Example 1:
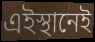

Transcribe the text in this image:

এইস্থানেই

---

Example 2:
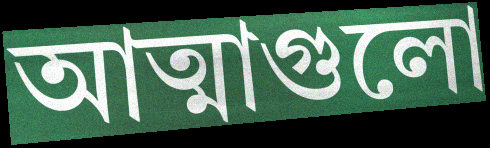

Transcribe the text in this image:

আত্মাগুলো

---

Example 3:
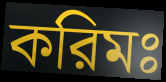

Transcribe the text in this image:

করিমঃ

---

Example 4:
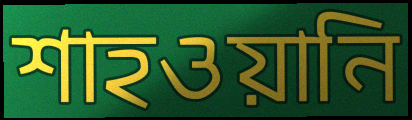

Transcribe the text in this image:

শাহওয়ানি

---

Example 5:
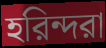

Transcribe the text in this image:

হরিন্দরা